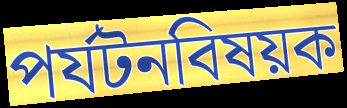
পর্যটনবিষয়ক